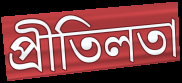
প্রীতিলতা